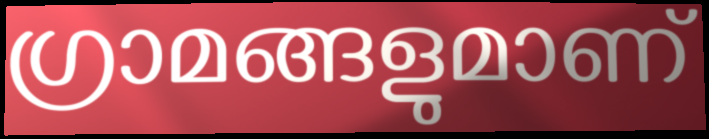
ഗ്രാമങ്ങളുമാണ്